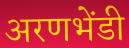
अरणभेंडी